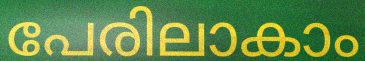
പേരിലാകാം